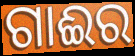
ଗାଈର